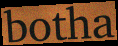
botha